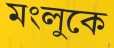
মংলুকে